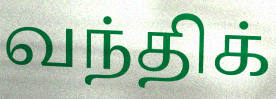
வந்திக்